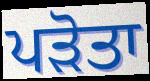
ਪੜੋਤਾ